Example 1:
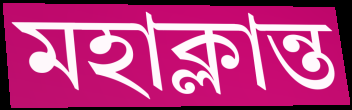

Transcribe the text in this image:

মহাক্লান্ত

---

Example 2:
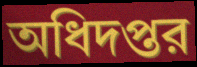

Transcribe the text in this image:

অধিদপ্তর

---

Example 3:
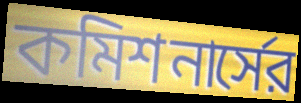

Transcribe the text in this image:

কমিশনার্সের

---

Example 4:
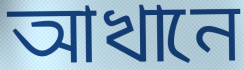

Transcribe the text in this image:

আখানে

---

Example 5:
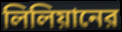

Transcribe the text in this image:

লিলিয়ানের